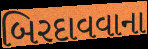
બિરદાવવાના